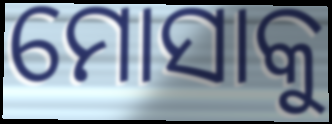
ମୋସାକୁ